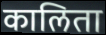
कालिता